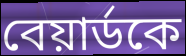
বেয়ার্ডকে